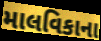
માલવિકાના